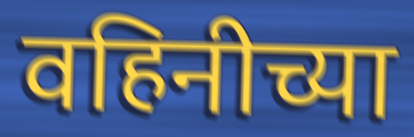
वहिनीच्या